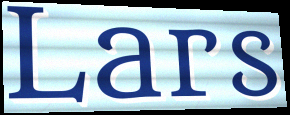
Lars